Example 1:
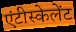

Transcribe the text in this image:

एंटीस्केलेंट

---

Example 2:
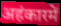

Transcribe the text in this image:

अहंकारमें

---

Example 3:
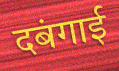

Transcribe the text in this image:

दबंगाई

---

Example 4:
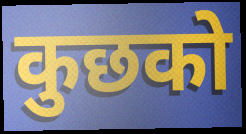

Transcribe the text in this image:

कुछको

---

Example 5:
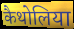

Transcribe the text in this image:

कैथोलिया